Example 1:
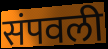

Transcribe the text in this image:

संपवली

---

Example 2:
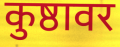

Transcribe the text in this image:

कुष्ठावर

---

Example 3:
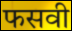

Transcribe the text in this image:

फसवी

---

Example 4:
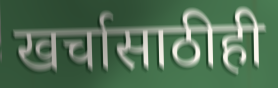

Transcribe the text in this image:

खर्चासाठीही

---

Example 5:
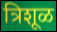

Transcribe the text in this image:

त्रिशूळ